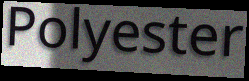
Polyester